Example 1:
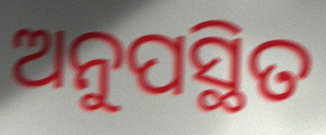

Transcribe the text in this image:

ଅନୁପସ୍ଥିତ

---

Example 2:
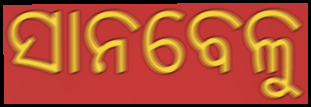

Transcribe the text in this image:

ସାନବେଳୁ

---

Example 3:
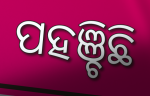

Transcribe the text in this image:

ପହଞ୍ଚିଛି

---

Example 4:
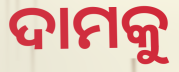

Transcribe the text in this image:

ଦାମକୁ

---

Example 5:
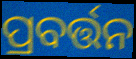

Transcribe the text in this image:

ପ୍ରବର୍ତ୍ତନ